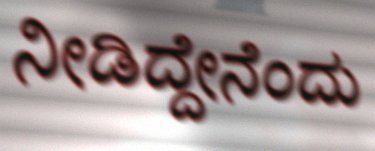
ನೀಡಿದ್ದೇನೆಂದು